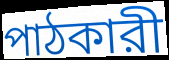
পাঠকারী